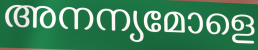
അനന്യമോളെ